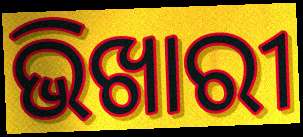
ଭିଖାରୀ